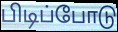
பிடிப்போடு